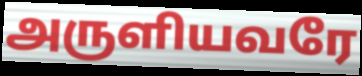
அருளியவரே